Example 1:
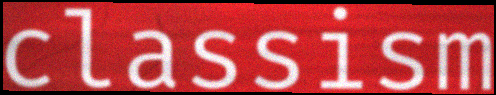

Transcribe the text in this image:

classism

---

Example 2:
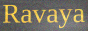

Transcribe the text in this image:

Ravaya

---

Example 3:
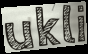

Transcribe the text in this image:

ukli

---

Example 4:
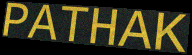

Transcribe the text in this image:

PATHAK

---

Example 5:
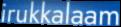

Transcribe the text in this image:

irukkalaam